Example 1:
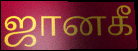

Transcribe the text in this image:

ஜானகீ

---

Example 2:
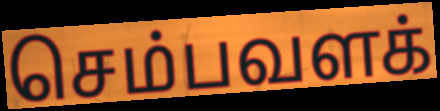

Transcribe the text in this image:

செம்பவளக்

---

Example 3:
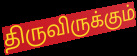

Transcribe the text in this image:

திருவிருக்கும்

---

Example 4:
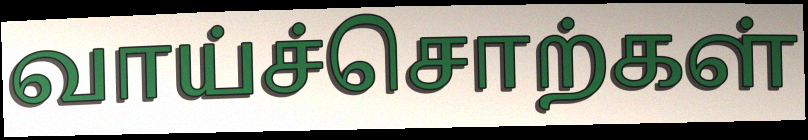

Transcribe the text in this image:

வாய்ச்சொற்கள்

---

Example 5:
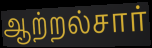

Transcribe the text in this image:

ஆற்றல்சார்